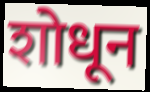
शोधून